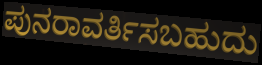
ಪುನರಾವರ್ತಿಸಬಹುದು